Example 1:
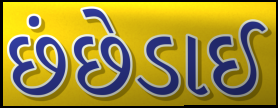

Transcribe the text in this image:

છંછેડાઈ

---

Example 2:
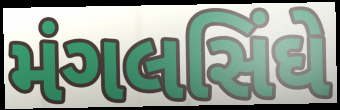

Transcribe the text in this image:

મંગલસિંઘે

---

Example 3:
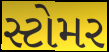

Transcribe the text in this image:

સ્ટોમર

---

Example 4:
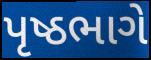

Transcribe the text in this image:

પૃષ્ઠભાગે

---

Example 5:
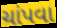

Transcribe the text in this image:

ચાંપવા